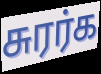
சுரர்க